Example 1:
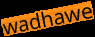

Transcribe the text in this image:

wadhawe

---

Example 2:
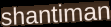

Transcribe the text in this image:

shantiman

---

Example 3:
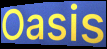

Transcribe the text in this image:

Oasis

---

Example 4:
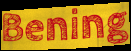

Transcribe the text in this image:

Bening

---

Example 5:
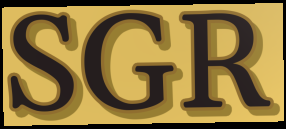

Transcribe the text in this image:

SGR